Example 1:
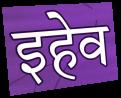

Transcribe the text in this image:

इहेव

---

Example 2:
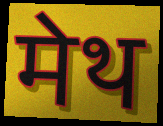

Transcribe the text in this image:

मेथ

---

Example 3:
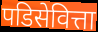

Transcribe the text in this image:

पडिसेवित्ता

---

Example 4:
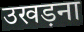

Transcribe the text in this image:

उखड़ना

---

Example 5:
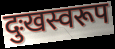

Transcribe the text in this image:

दुःखस्वरूप